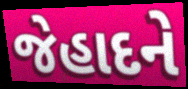
જેહાદને